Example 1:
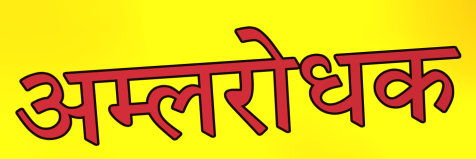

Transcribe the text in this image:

अम्लरोधक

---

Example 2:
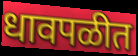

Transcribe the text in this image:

धावपळीत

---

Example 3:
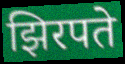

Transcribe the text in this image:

झिरपते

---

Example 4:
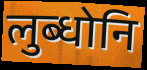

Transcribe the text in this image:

लुब्धोनि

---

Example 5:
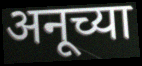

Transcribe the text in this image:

अनूच्या